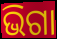
ଭିଗା